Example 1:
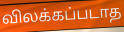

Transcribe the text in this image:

விலக்கப்படாத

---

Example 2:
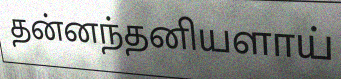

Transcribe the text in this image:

தன்னந்தனியளாய்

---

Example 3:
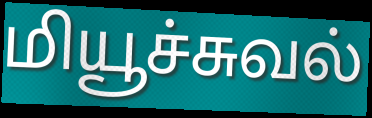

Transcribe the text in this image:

மியூச்சுவல்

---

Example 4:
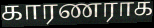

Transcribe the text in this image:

காரணராக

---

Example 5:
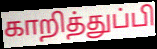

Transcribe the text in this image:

காறித்துப்பி